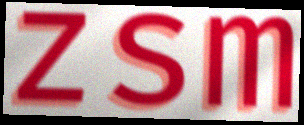
zsm